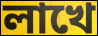
লাখে